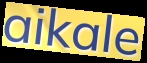
aikale